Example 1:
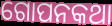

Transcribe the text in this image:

ଗୋପନକଥା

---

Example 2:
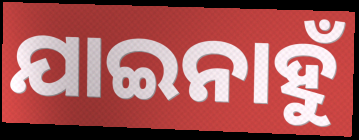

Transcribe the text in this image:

ଯାଇନାହୁଁ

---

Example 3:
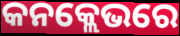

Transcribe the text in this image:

କନକ୍ଲେଭରେ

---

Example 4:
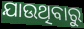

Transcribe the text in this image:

ଯାଉଥିବାରୁ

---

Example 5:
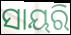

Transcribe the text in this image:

ସାୟରି